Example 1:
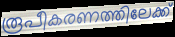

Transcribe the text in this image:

രൂപീകരണത്തിലേക്ക്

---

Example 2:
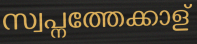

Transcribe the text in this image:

സ്വപ്നത്തേക്കാള്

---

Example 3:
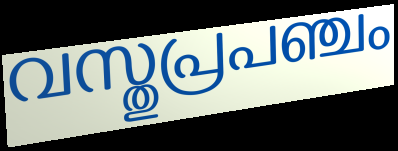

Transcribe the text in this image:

വസ്തുപ്രപഞ്ചം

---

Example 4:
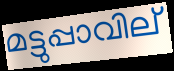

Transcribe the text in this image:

മട്ടുപ്പാവില്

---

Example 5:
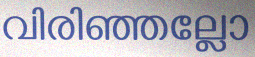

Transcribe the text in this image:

വിരിഞ്ഞല്ലോ